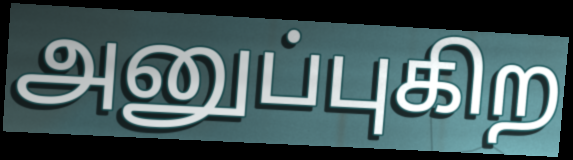
அனுப்புகிற